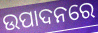
ଉପାଦନରେ